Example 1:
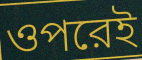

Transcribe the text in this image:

ওপরেই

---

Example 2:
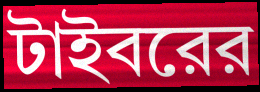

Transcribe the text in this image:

টাইবরের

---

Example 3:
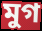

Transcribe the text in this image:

মুগ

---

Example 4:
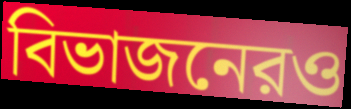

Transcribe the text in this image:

বিভাজনেরও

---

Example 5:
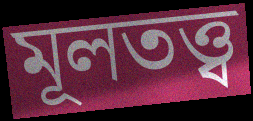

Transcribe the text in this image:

মূলতত্ত্ব